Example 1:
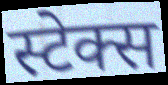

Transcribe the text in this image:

स्टेक्स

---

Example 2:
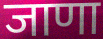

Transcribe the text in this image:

जाणा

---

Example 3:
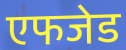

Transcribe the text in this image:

एफजेड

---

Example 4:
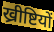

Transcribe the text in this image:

ख्रीष्टियों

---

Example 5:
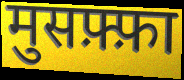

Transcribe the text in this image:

मुसफ़्फ़ा